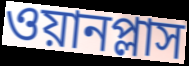
ওয়ানপ্লাস